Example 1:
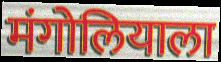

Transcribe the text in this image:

मंगोलियाला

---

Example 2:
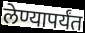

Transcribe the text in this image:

लेण्यापर्यंत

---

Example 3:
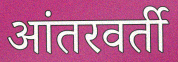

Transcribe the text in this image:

आंतरवर्ती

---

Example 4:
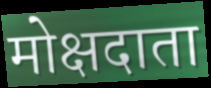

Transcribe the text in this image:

मोक्षदाता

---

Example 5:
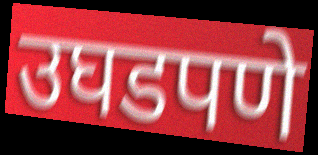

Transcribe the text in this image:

उघडपणे